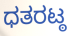
ಧತರಟ್ಠ